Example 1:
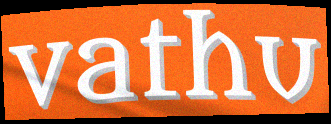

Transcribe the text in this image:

vathu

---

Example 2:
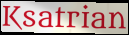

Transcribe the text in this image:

Ksatrian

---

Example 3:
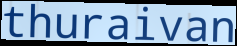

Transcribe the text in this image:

thuraivan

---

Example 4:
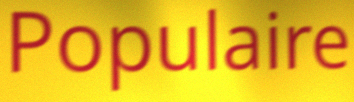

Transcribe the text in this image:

Populaire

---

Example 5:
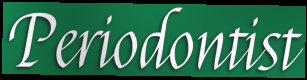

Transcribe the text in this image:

Periodontist